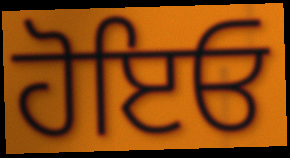
ਹੋਇਓ